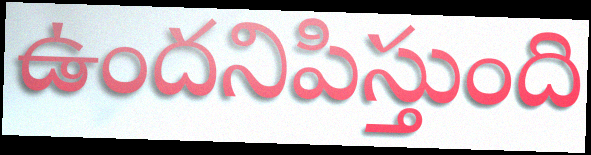
ఉందనిపిస్తుంది